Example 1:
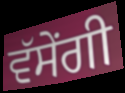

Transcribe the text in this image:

ਵੱਸੇਂਗੀ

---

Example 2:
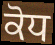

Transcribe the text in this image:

ਕੋਧ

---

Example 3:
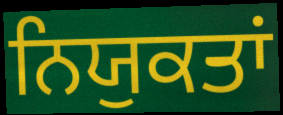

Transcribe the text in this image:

ਨਿਯੁਕਤਾਂ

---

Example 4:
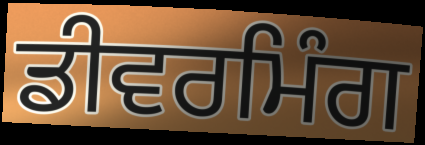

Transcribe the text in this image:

ਡੀਵਰਮਿੰਗ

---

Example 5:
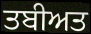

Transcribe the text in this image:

ਤਬੀਅਤ